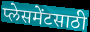
प्लेसमेंटसाठी